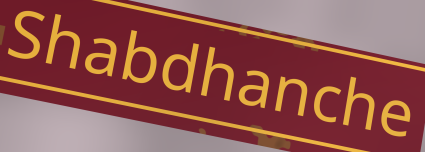
Shabdhanche